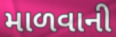
માળવાની